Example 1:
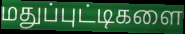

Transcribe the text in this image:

மதுப்புட்டிகளை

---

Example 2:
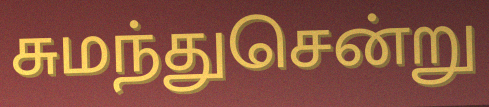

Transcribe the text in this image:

சுமந்துசென்று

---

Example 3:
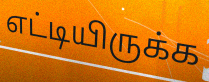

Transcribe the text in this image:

எட்டியிருக்க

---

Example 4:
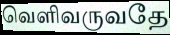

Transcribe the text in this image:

வெளிவருவதே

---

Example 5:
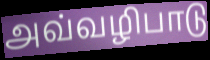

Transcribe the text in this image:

அவ்வழிபாடு